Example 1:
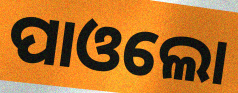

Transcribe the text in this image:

ପାଓଲୋ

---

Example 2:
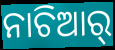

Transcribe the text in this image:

ନାଚିଆର୍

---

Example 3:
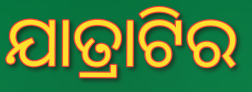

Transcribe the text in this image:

ଯାତ୍ରାଟିର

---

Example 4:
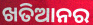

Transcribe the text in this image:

ଖତିଆନର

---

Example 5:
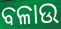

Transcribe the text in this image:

ବଳାଉ